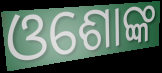
ଓଶୋଙ୍କ